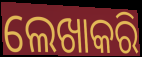
ଲେଖାକରି